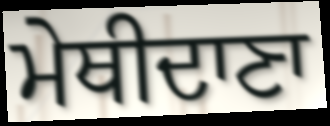
ਮੇਥੀਦਾਣਾ